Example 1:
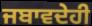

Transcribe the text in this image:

ਜਬਾਵਦੇਹੀ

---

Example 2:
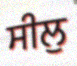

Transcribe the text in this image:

ਸੀਲੁ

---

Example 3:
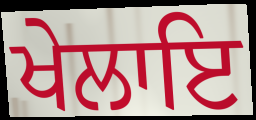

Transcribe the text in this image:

ਖੇਲਾਇ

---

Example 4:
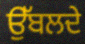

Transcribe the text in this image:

ਉੱਬਲਦੇ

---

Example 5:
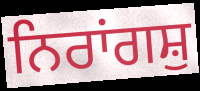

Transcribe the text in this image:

ਨਿਰਾਂਗਸ਼ੁ